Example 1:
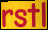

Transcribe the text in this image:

rstl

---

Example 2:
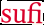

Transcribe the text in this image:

sufi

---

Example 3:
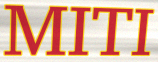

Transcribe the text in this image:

MITI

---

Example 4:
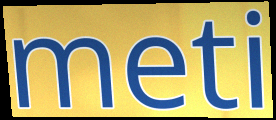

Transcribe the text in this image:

meti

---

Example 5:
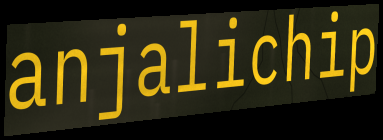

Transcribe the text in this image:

anjalichip